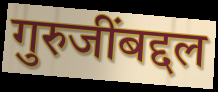
गुरुजींबद्दल